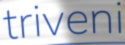
triveni